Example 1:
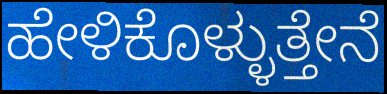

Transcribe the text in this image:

ಹೇಳಿಕೊಳ್ಳುತ್ತೇನೆ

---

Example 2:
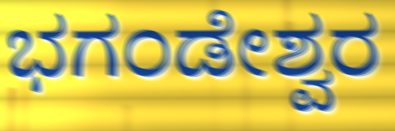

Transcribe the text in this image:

ಭಗಂಡೇಶ್ವರ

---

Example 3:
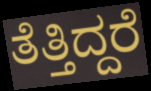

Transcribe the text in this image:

ತೆತ್ತಿದ್ದರೆ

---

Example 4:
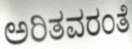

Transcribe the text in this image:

ಅರಿತವರಂತೆ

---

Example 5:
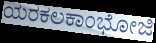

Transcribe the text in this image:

ಯರಕಲಕಾಂಭೋಜಿ